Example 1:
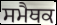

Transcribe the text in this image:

ਸਮੈਥਕ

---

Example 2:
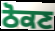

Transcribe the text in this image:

ਠੋਕਣ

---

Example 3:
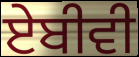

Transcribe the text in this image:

ਏਬੀਵੀ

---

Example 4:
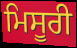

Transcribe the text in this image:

ਮਿਸੂਰੀ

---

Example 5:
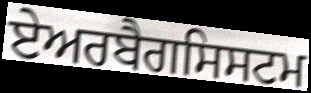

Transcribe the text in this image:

ਏਅਰਬੈਗਸਿਸਟਮ